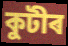
কুটীৰ